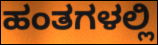
ಹಂತಗಳಲ್ಲಿ